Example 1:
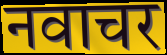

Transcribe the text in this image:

नवाचर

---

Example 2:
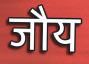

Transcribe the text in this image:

जौय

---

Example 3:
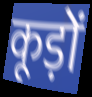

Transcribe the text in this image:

कूड़ों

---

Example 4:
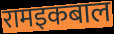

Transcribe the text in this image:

रामइकबाल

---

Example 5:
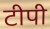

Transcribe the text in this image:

टीपी